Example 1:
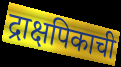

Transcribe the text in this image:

द्राक्षपिकाची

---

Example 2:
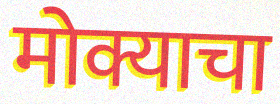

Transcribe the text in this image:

मोक्याचा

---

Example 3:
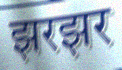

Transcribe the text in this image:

झरझर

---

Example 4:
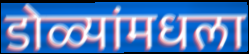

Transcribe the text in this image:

डोळ्यांमधला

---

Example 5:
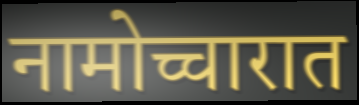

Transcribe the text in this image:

नामोच्चारात